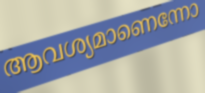
ആവശ്യമാണെന്നോ